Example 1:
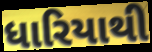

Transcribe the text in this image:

ધારિયાથી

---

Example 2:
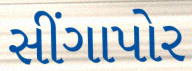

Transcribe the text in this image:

સીંગાપોર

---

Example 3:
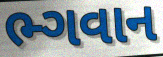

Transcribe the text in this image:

ભ્ગવાન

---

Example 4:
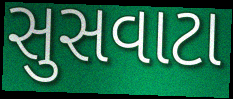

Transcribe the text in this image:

સુસવાટા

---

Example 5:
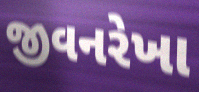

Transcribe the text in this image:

જીવનરેખા